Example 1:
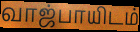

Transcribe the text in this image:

வாஜ்பாயிடம்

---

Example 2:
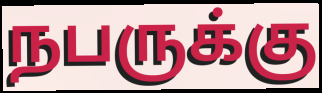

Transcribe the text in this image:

நபருக்கு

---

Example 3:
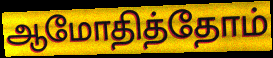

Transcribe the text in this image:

ஆமோதித்தோம்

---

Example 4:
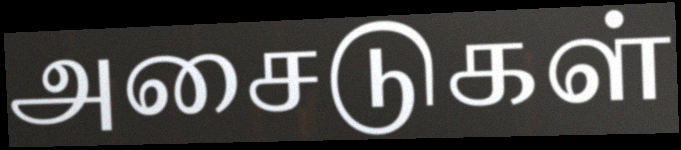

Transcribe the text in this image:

அசைடுகள்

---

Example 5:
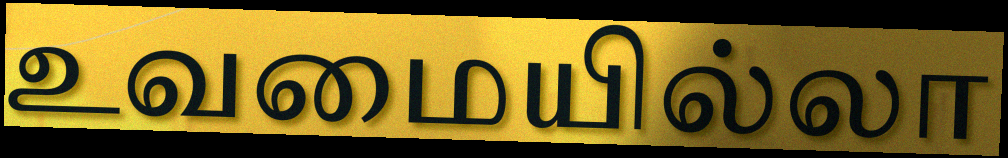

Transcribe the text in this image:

உவமையில்லா